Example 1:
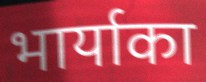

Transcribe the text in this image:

भार्याका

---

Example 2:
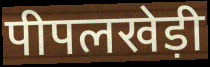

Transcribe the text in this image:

पीपलखेड़ी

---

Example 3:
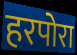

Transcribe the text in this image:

हरपोरा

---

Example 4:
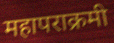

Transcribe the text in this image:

महापराक्रमी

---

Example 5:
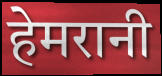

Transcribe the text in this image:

हेमरानी